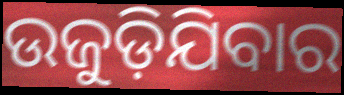
ଉଜୁଡ଼ିଯିବାର